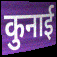
कुनाई